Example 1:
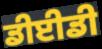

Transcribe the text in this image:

ਡੀਈਡੀ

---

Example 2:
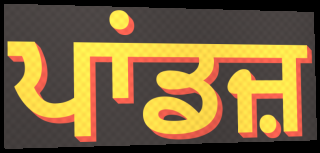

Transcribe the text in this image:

ਪਾਂਡਜ਼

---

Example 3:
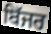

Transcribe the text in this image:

ਬਿੱਜਰ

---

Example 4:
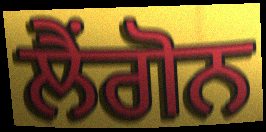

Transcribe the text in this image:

ਲੈਂਗੋਨ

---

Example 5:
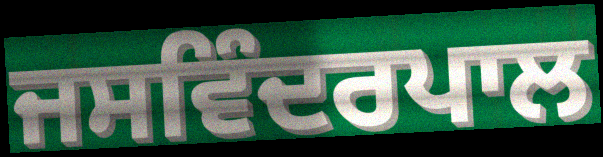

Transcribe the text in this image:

ਜਸਵਿੰਦਰਪਾਲ